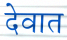
देवात